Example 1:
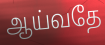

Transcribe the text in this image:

ஆய்வதே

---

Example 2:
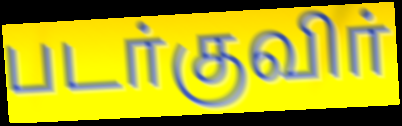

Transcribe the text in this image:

படர்குவிர்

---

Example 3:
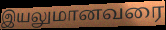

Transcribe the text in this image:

இயலுமானவரை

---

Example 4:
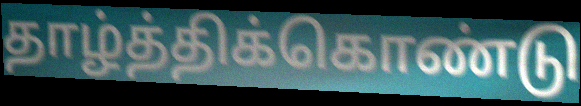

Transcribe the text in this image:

தாழ்த்திக்கொண்டு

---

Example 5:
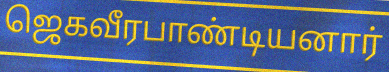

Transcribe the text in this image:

ஜெகவீரபாண்டியனார்